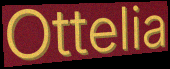
Ottelia